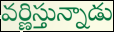
వర్ణిస్తున్నాడు